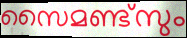
സൈമണ്ട്സും